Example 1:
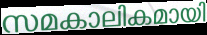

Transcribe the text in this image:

സമകാലികമായി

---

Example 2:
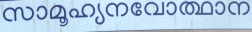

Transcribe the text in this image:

സാമൂഹ്യനവോത്ഥാന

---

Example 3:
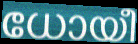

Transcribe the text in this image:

ധോയീ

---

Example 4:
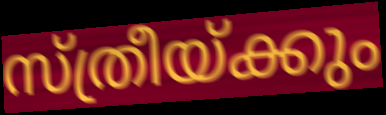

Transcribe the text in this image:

സ്ത്രീയ്ക്കും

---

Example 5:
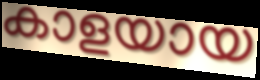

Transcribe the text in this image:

കാളയായ